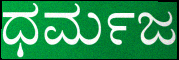
ಧರ್ಮಜ